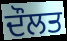
ਦੌਲਤ